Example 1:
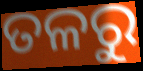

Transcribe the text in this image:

ତଳରୁ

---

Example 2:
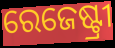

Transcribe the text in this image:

ରେଜେଷ୍ଟ୍ରୀ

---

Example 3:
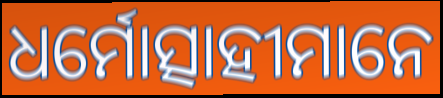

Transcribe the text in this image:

ଧର୍ମୋତ୍ସାହୀମାନେ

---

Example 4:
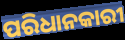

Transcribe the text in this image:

ପରିଧାନକାରୀ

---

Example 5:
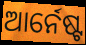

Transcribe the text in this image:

ଆର୍ନେଷ୍ଟ